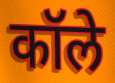
कॉले